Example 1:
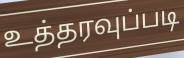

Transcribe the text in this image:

உத்தரவுப்படி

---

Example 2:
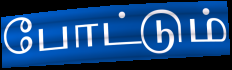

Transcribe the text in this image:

போட்டும்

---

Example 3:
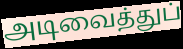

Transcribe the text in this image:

அடிவைத்துப்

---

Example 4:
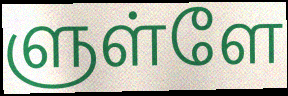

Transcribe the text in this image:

ளுள்ளே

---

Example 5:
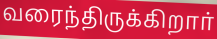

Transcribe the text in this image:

வரைந்திருக்கிறார்